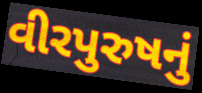
વીરપુરુષનું